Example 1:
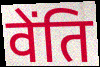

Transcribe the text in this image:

वेंति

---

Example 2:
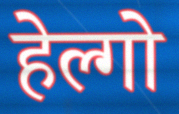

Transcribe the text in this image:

हेल्गो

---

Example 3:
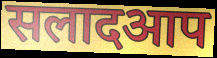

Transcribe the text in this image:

सलादआप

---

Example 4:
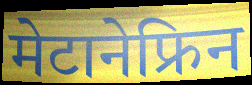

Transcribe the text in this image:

मेटानेफ्रिन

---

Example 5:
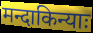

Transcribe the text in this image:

मन्दाकिन्याः